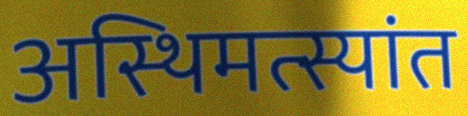
अस्थिमत्स्यांत